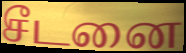
சீடனை